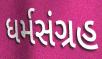
ધર્મસંગ્રહ